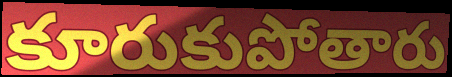
కూరుకుపోతారు